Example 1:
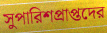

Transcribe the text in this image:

সুপারিশপ্রাপ্তদের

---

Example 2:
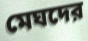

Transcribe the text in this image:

মেঘদের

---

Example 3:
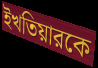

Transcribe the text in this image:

ইখতিয়ারকে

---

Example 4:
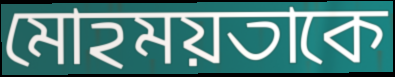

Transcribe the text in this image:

মোহময়তাকে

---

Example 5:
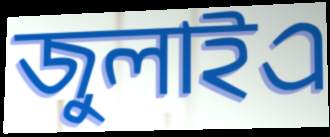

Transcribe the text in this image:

জুলাইএ